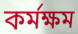
কর্মক্ষম